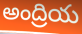
అంద్రియ